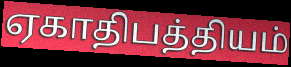
ஏகாதிபத்தியம்